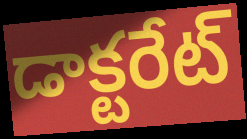
డాక్టరేట్